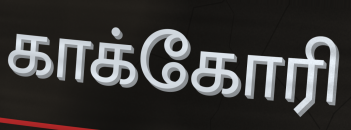
காக்கோரி